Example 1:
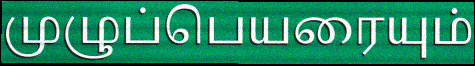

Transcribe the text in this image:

முழுப்பெயரையும்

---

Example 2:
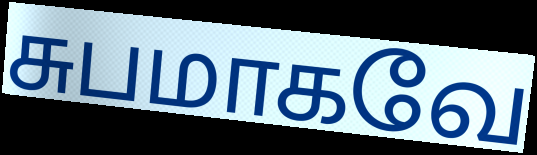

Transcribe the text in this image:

சுபமாகவே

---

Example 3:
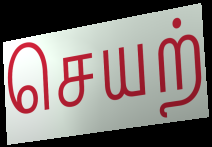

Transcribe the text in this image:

செயற்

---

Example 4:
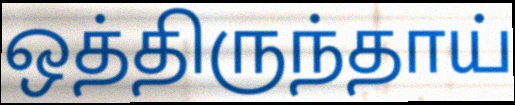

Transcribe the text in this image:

ஒத்திருந்தாய்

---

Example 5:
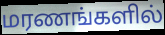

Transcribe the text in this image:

மரணங்களில்